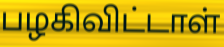
பழகிவிட்டாள்